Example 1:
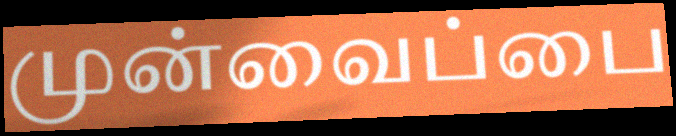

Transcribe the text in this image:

முன்வைப்பை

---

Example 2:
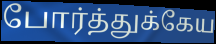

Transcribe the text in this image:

போர்த்துக்கேய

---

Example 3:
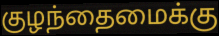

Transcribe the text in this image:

குழந்தைமைக்கு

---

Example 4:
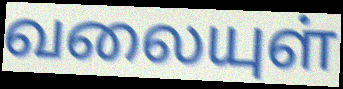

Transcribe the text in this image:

வலையுள்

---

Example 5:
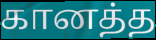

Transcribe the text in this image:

கானத்த